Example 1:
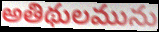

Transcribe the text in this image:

అతిథులమును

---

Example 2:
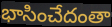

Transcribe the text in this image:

భాసించేదంతా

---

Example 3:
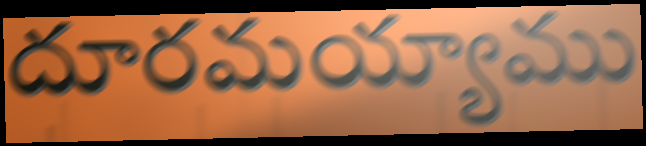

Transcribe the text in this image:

దూరమయ్యాము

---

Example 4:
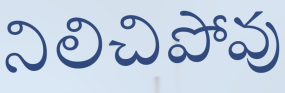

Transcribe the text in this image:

నిలిచిపోవు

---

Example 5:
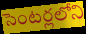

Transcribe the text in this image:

సెంటర్లలోని